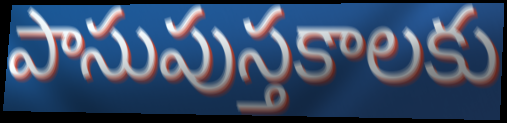
పాసుపుస్తకాలకు